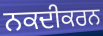
ਨਕਦੀਕਰਨ